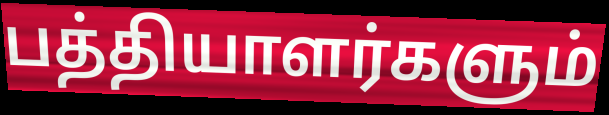
பத்தியாளர்களும்